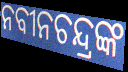
ନବୀନଚନ୍ଦ୍ରଙ୍କ